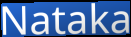
Nataka